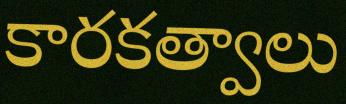
కారకత్వాలు